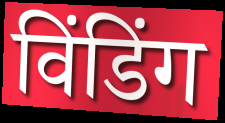
विंडिंग